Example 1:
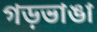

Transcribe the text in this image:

গড়ভাঙা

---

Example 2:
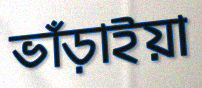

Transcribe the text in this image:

ভাঁড়াইয়া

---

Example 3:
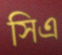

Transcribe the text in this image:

সিএ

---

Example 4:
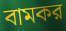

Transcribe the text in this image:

বামকর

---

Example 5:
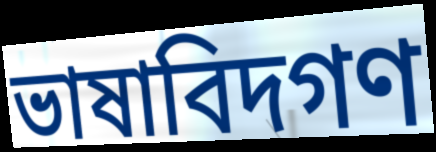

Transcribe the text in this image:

ভাষাবিদগণ